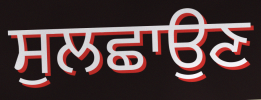
ਸੁਲਛਾਉਣ